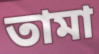
তামা